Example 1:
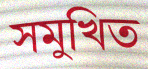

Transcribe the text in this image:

সমুখিত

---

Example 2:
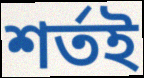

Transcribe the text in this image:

শর্তই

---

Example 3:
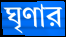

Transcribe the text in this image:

ঘৃণার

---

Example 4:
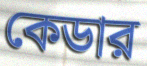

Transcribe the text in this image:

কেডার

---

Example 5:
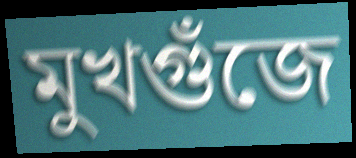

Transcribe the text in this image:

মুখগুঁজে